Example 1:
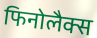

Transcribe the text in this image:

फिनोलैक्स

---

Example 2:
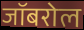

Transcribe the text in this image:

जॉबरोल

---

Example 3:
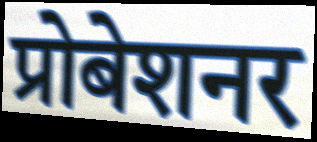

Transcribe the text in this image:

प्रोबेशनर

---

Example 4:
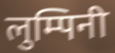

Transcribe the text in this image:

लुम्पिनी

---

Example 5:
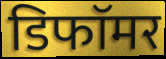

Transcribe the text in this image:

डिफॉमर